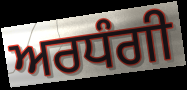
ਅਰਧੰਗੀ